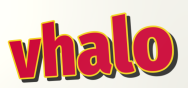
vhalo